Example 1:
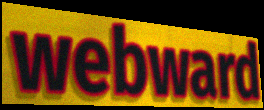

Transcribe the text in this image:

webward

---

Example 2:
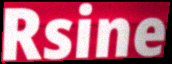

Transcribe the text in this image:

Rsine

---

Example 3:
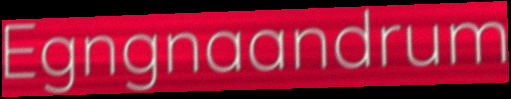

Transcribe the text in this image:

Egngnaandrum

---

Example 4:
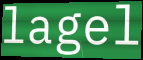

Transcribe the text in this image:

lagel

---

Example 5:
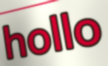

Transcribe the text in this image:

hollo